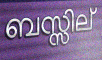
ബസ്സില്